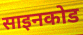
साइनकोड